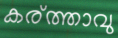
കര്ത്താവു